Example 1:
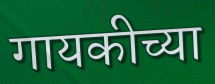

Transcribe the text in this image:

गायकीच्या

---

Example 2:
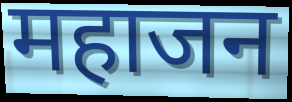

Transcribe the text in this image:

महाजन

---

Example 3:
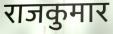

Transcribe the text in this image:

राजकुमार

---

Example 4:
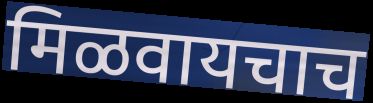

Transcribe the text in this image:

मिळवायचाच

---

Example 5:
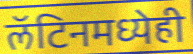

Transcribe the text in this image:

लॅटिनमध्येही